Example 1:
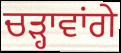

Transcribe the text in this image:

ਚੜ੍ਹਾਵਾਂਗੇ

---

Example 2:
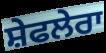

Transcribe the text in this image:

ਸ਼ੇਫਲੇਰਾ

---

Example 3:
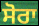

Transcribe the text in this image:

ਸੋਰਾ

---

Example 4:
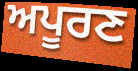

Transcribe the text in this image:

ਅਪੂਰਣ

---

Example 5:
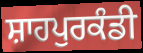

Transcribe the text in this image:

ਸ਼ਾਹਪੁਰਕੰਡੀ